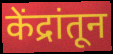
केंद्रांतून